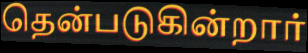
தென்படுகின்றார்